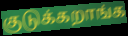
குடுக்கறாங்க